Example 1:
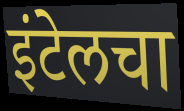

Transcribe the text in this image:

इंटेलचा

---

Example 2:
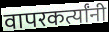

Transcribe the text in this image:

वापरकर्त्यांनी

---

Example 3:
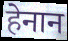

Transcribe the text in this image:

हेनान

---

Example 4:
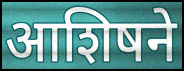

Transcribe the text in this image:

आशिषने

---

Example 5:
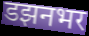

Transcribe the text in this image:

डझनभर